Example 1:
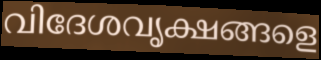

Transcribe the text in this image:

വിദേശവൃക്ഷങ്ങളെ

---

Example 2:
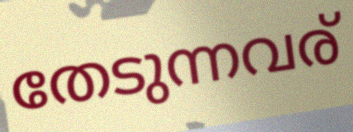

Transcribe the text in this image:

തേടുന്നവര്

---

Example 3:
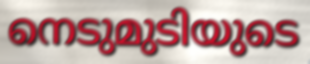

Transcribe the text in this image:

നെടുമുടിയുടെ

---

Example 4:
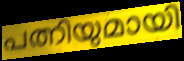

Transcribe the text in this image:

പത്നിയുമായി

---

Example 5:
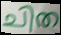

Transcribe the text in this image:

ചിത